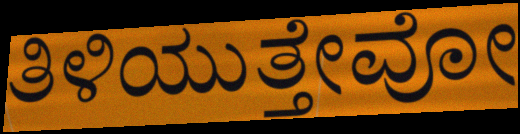
ತಿಳಿಯುತ್ತೇವೋ